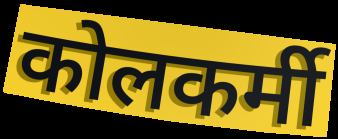
कोलकर्मी